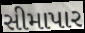
સીમાપાર